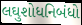
લઘુશોધનિબંધો